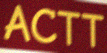
ACTT